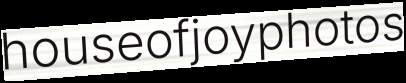
houseofjoyphotos